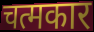
चत्मकार